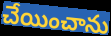
చేయించాను